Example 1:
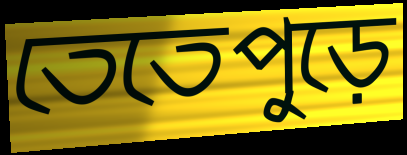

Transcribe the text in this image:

তেতেপুড়ে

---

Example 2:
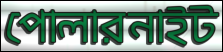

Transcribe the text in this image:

পোলারনাইট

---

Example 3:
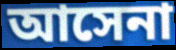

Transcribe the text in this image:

আসেনা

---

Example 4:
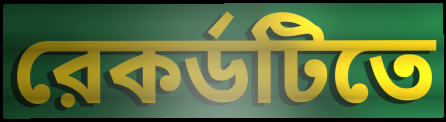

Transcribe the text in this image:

রেকর্ডটিতে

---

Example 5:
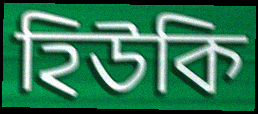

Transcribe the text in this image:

হিউকি